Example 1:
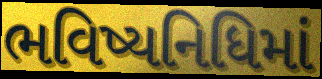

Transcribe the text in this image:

ભવિષ્યનિધિમાં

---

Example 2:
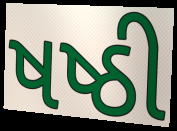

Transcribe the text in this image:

ષષ્ઠી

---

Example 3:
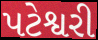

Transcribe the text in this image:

પટેશ્વરી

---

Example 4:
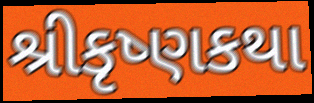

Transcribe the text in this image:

શ્રીકૃષ્ણકથા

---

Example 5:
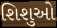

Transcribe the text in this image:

શિશુઓ